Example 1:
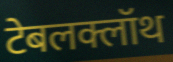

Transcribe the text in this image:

टेबलक्लॉथ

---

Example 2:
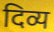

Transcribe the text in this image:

दिव्य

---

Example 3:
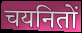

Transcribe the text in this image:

चयनितों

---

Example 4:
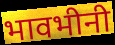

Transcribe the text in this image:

भावभीनी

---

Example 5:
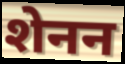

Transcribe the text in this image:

शेनन